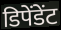
डिपेंडेंट